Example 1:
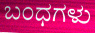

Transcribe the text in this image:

ಬಂಧಗಳು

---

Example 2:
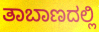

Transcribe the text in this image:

ತಾಬಾಣದಲ್ಲಿ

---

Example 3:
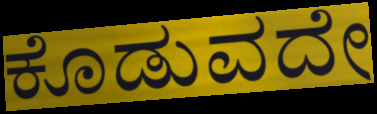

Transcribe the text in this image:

ಕೊಡುವದೇ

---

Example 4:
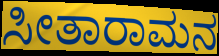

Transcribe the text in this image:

ಸೀತಾರಾಮನ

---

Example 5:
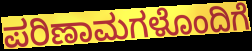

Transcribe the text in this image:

ಪರಿಣಾಮಗಳೊಂದಿಗೆ